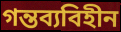
গন্তব্যবিহীন